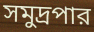
সমুদ্রপার